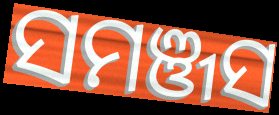
ସମଞ୍ଜସ